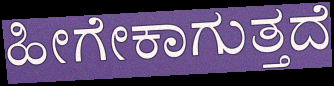
ಹೀಗೇಕಾಗುತ್ತದೆ